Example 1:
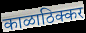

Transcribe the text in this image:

काळाठिक्कर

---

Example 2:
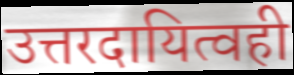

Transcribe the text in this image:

उत्तरदायित्वही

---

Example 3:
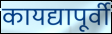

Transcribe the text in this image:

कायद्यापूर्वी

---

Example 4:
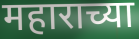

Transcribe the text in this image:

महाराच्या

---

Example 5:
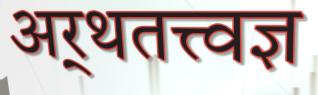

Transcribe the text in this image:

अर्थतत्त्वज्ञ